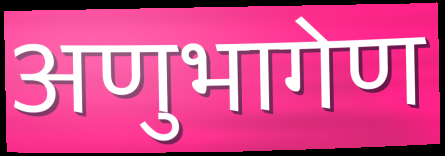
अणुभागेण